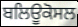
ਬਲਿਊਕੋਸਲ